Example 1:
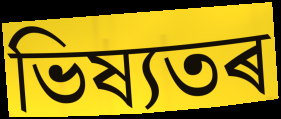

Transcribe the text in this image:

ভিষ্যতৰ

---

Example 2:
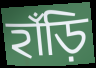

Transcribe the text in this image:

হাঁড়ি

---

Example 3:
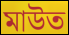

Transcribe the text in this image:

মাউত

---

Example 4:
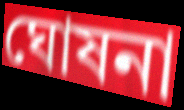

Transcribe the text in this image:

ঘোষনা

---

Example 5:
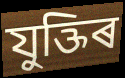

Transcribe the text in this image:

যুক্তিৰ